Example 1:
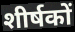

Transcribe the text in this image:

शीर्षकों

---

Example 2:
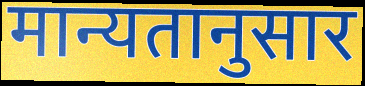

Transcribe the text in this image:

मान्यतानुसार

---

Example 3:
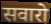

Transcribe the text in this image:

सवारो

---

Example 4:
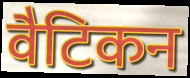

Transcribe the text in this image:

वैटिकन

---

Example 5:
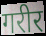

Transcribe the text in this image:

गरीर